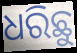
ଧରିଛୁ